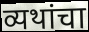
व्यथांचा